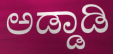
ಅಡ್ಡಾಡಿ